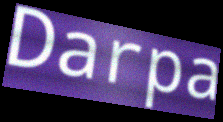
Darpa